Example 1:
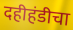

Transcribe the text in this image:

दहीहंडीचा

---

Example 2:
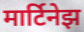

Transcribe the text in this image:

मार्टिनेझ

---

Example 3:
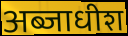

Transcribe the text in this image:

अब्जाधीश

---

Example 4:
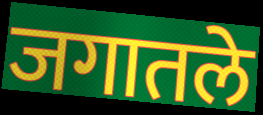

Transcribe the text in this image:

जगातले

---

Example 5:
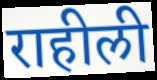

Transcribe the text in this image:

राहीली